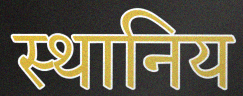
स्थानिय